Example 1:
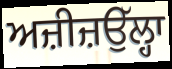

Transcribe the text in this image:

ਅਜ਼ੀਜ਼ਉੱਲ੍ਹਾ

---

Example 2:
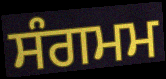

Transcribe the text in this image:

ਸੰਗਮਮ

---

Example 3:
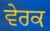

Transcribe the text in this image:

ਵੇਰਕ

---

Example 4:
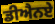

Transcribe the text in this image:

ਡੀਐਨਏ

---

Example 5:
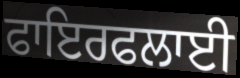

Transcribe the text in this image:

ਫਾਇਰਫਲਾਈ